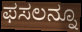
ಫಸಲನ್ನೂ